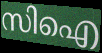
സിഐ